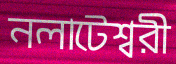
নলাটেশ্বরী